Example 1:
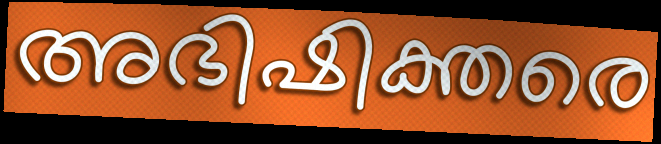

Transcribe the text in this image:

അഭിഷിക്തരെ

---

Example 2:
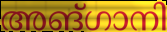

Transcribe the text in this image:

അങ്ഗാനി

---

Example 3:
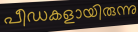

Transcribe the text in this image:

പീഡകളായിരുന്നു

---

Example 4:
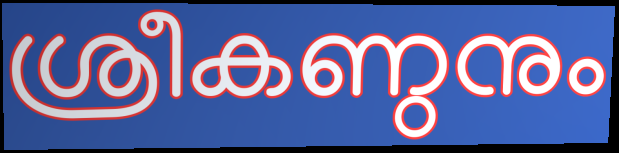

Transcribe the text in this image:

ശ്രീകണ്ഠനും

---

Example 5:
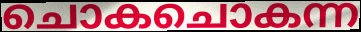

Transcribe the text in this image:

ചൊകചൊകന്ന